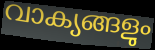
വാക്യങ്ങളും